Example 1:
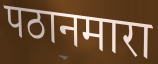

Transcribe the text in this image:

पठानमारा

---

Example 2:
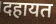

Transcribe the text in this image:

दहायत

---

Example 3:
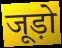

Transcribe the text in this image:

जूड़ो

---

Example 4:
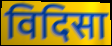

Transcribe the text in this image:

विदिसा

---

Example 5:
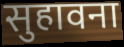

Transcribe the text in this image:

सुहावना